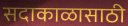
सदाकाळासाठी